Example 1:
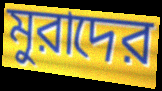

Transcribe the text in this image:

মুরাদের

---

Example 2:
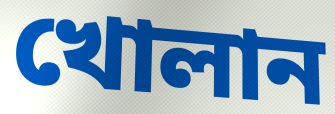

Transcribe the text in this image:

খোলান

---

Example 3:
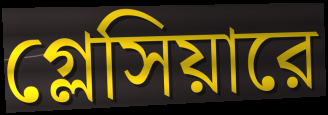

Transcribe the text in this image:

গ্লেসিয়ারে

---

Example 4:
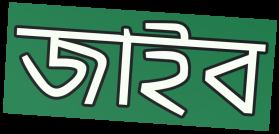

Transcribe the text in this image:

জাইব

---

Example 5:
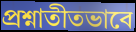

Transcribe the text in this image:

প্রশ্নাতীতভাবে